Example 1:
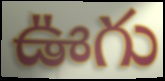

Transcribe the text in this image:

ఊగు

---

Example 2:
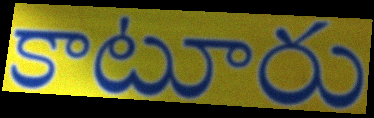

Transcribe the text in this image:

కాటూరు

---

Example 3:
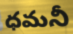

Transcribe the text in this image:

ధమనీ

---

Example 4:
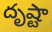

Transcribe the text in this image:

దృష్టా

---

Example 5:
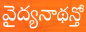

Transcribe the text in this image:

వైద్యనాథన్తో